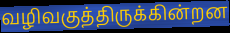
வழிவகுத்திருக்கின்றன